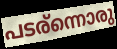
പടര്ന്നൊരു